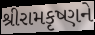
શ્રીરામકૃષ્ણને